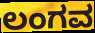
ಲಂಗವ